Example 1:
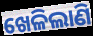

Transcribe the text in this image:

ଖେଳିଲାଣି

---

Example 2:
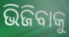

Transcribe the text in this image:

ଭିଜିବାକୁ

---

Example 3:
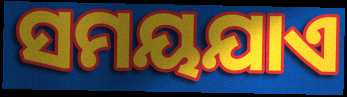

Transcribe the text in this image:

ସମୟଯାଏ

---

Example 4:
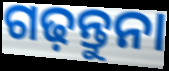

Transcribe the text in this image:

ଗଢ଼ନ୍ତୁନା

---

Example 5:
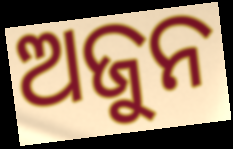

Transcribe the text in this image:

ଅଜୁନ